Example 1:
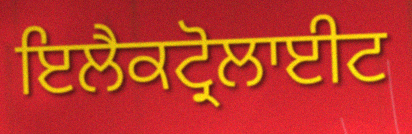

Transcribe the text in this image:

ਇਲੈਕਟ੍ਰੋਲਾਈਟ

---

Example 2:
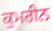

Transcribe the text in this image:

ਕੁਮਰੀਨ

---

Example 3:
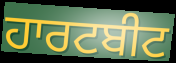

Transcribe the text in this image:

ਹਾਰਟਬੀਟ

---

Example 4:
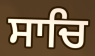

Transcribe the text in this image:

ਸਾਚਿ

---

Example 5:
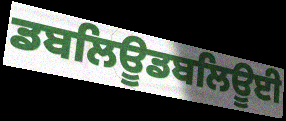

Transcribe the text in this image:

ਡਬਲਿਊਡਬਲਿਊਈ